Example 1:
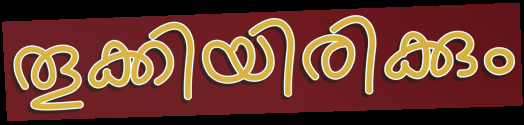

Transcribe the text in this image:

തൂക്കിയിരിക്കും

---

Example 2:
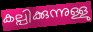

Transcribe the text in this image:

കല്പിക്കുന്നുള്ളു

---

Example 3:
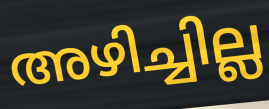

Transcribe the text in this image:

അഴിച്ചില്ല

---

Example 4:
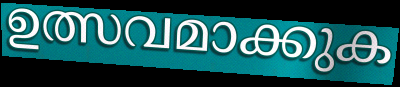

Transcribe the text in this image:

ഉത്സവമാക്കുക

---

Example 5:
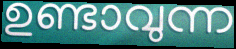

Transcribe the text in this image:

ഉണ്ടാവുന്ന